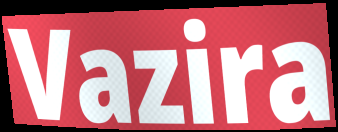
Vazira